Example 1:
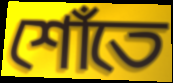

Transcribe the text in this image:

শোঁতে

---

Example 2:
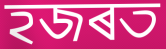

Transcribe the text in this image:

হজৰত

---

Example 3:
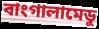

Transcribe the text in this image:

বাংগালামেডু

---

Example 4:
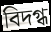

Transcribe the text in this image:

বিদগ্ধ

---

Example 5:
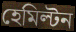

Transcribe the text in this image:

হেমিল্টন